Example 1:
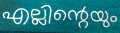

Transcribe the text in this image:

എല്ലിന്റെയും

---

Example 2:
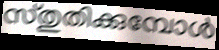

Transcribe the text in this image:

സ്തുതിക്കുമ്പോൾ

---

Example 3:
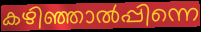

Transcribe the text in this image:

കഴിഞ്ഞാൽപ്പിന്നെ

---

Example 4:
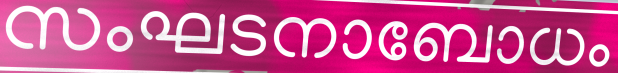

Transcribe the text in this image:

സംഘടനാബോധം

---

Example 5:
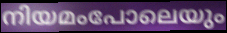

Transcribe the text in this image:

നിയമംപോലെയും